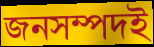
জনসম্পদই